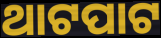
ଥାଟପାଟ